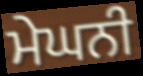
ਮੇਘਨੀ